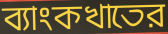
ব্যাংকখাতের